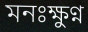
মনঃক্ষুণ্ন